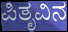
ಪಿತೃವಿನ